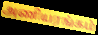
அணியரங்கம்